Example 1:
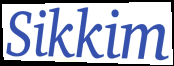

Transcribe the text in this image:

Sikkim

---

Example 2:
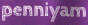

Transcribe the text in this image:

penniyam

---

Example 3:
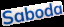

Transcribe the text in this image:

Saboda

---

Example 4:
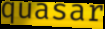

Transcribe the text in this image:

quasar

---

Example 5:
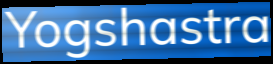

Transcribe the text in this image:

Yogshastra